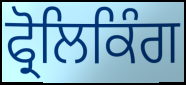
ਫ੍ਰੋਲਿਕਿੰਗ